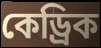
কেড্রিক